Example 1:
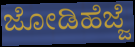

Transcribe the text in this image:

ಜೋಡಿಹೆಜ್ಜೆ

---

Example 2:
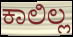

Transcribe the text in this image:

ಕಾಲಿಲ್ಲ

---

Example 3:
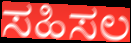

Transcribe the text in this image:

ಸಹಿಸಲ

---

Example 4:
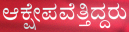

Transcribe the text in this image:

ಆಕ್ಷೇಪವೆತ್ತಿದ್ದರು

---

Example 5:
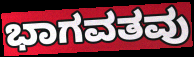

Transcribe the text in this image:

ಭಾಗವತವು